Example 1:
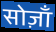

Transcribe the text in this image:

सोज़ाँ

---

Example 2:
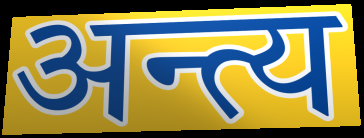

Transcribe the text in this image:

अन्त्य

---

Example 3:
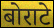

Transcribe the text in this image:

बोराटे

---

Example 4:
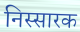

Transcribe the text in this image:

निस्सारक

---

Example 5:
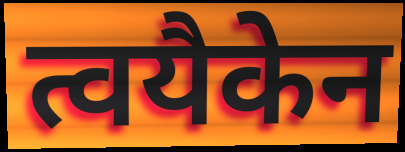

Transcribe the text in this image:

त्वयैकेन